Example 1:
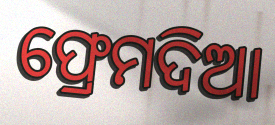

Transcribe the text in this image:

ଫ୍ରେମଦିଆ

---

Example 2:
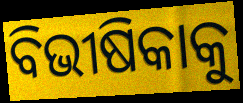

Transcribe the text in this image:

ବିଭୀଷିକାକୁ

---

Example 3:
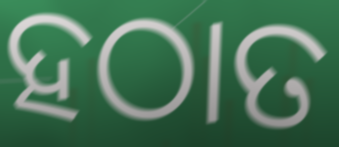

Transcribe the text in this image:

ହଠାତ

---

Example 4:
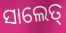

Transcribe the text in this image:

ସାଲେତ୍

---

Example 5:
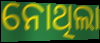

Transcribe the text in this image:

ନୋଥିଲା